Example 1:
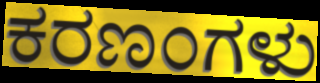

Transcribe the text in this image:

ಕರಣಂಗಳು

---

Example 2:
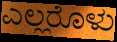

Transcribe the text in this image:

ಎಲ್ಲರೊಳು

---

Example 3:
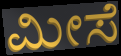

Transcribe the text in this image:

ಮೀಸೆ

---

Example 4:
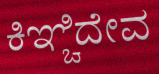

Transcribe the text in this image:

ಕಿಞ್ಚಿದೇವ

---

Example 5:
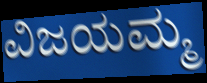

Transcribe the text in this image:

ವಿಜಯಮ್ಮ